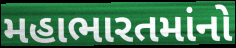
મહાભારતમાંનો